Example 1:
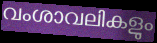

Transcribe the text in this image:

വംശാവലികളും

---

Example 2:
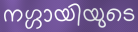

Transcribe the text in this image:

നഗ്ഗായിയുടെ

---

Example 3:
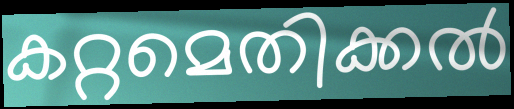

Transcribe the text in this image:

കറ്റമെതിക്കൽ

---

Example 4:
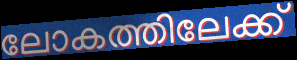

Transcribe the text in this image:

ലോകത്തിലേക്ക്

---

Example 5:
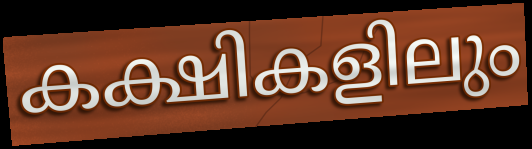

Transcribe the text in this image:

കക്ഷികളിലും